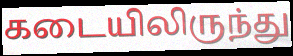
கடையிலிருந்து